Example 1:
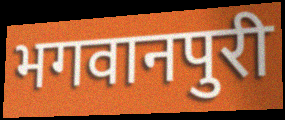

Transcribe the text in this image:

भगवानपुरी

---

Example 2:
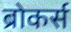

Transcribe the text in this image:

ब्रोकर्स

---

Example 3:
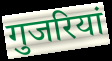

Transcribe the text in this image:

गुजरियां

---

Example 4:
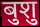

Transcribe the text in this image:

बुशु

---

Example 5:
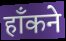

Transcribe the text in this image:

हाँकने